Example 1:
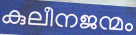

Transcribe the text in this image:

കുലീനജന്മം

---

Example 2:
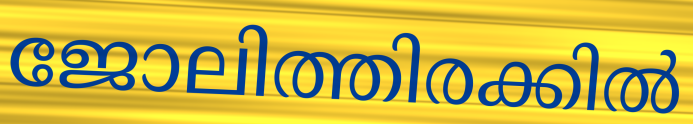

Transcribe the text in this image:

ജോലിത്തിരക്കിൽ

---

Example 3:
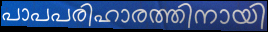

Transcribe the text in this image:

പാപപരിഹാരത്തിനായി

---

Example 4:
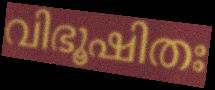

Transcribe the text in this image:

വിഭൂഷിതഃ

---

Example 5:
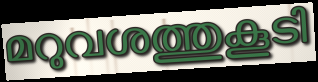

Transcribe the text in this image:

മറുവശത്തുകൂടി